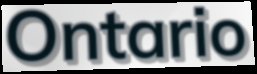
Ontario